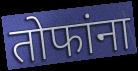
तोफांना